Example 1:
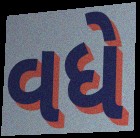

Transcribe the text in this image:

વધે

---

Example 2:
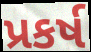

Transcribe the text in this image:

પ્રકર્ષ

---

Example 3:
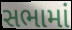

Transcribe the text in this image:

સભામાં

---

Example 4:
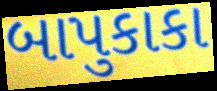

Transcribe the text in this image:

બાપુકાકા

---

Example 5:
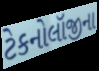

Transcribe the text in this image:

ટેકનોલૉજીના